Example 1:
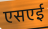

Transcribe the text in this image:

एसएई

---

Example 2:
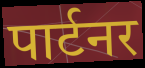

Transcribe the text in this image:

पार्टनर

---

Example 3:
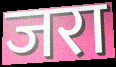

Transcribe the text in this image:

जरा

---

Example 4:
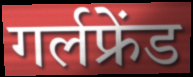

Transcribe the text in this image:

गर्लफ्रेंड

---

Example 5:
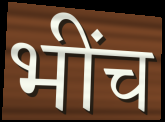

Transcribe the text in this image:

भींच